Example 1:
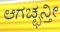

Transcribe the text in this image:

ಆಗಚ್ಛನ್ತೀ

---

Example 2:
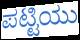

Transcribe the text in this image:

ಪಟ್ಟಿಯು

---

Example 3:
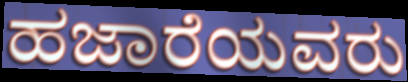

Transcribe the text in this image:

ಹಜಾರೆಯವರು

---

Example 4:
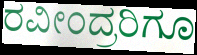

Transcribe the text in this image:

ರವೀಂದ್ರರಿಗೂ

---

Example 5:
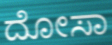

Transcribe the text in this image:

ದೋಸಾ